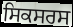
ਸਿਕਸਰਸ